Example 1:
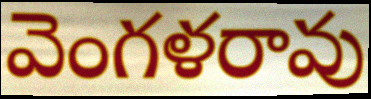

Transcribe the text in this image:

వెంగళరావు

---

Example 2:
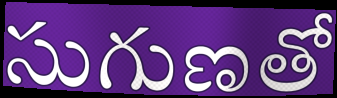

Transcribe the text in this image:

సుగుణతో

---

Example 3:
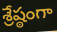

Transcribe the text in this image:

శ్రేష్ఠంగా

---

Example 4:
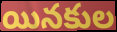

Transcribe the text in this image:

యినకుల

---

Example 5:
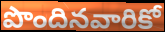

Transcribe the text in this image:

పొందినవారికో